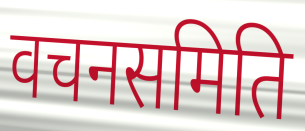
वचनसमिति